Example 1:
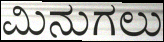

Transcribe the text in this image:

ಮಿನುಗಲು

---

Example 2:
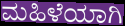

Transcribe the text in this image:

ಮಹಿಳೆಯಾಗಿ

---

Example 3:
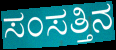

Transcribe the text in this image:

ಸಂಸತ್ತಿನ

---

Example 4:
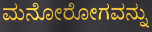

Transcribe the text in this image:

ಮನೋರೋಗವನ್ನು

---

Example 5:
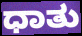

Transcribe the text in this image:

ಧಾತು